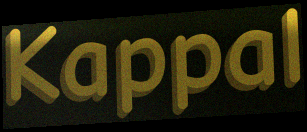
Kappal